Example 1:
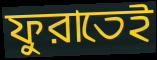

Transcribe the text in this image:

ফুরাতেই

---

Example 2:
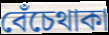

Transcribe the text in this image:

বেঁচেথাকা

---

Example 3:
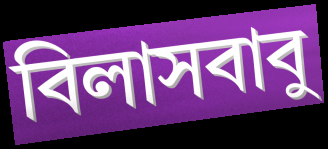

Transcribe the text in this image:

বিলাসবাবু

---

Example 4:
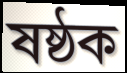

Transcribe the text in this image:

ষষ্ঠক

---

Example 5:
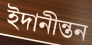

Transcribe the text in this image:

ইদানীন্তন